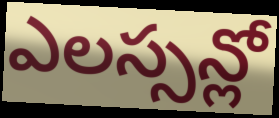
ఎలస్సన్లో